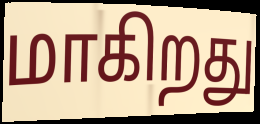
மாகிறது